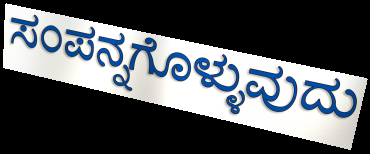
ಸಂಪನ್ನಗೊಳ್ಳುವುದು